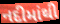
નદીમાંથી